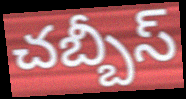
చబ్బీస్